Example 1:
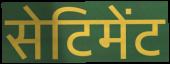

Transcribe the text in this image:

सेटिमेंट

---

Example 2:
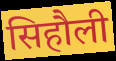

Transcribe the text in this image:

सिहौली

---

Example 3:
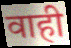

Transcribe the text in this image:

वाही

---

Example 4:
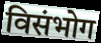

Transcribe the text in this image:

विसंभोग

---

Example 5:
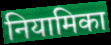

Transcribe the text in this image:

नियामिका